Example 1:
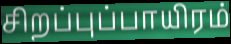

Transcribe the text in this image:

சிறப்புப்பாயிரம்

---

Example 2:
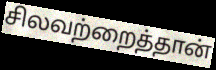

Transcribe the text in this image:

சிலவற்றைத்தான்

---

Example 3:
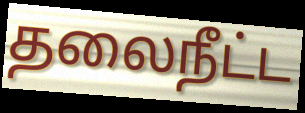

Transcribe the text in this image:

தலைநீட்ட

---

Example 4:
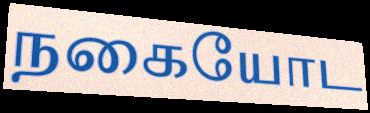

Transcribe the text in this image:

நகையோட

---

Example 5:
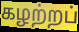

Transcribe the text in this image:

கழற்றப்